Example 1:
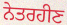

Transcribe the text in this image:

ਨੇਤਰਹੀਣ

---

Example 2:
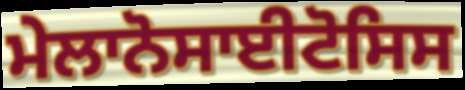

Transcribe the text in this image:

ਮੇਲਾਨੋਸਾਈਟੋਸਿਸ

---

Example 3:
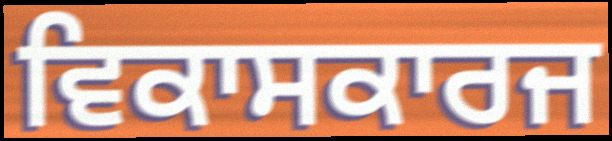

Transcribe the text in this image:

ਵਿਕਾਸਕਾਰਜ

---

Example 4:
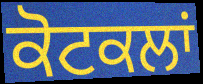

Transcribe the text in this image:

ਕੋਟਕਲਾਂ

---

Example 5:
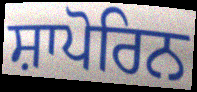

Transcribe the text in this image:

ਸ਼ਾਪੋਰਿਨ